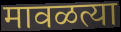
मावळत्या